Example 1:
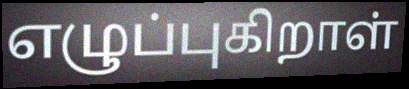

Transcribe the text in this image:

எழுப்புகிறாள்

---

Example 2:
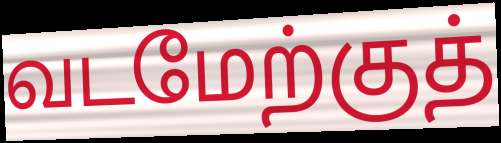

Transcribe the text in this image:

வடமேற்குத்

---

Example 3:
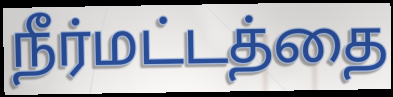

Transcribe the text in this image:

நீர்மட்டத்தை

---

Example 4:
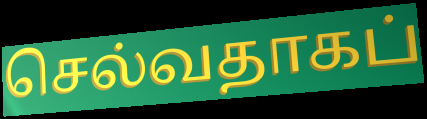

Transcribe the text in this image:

செல்வதாகப்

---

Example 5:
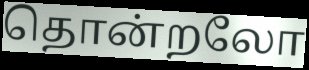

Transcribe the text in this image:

தொன்றலோ